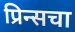
प्रिन्सचा